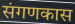
संगणकास